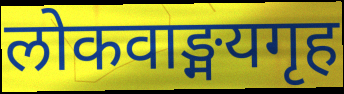
लोकवाङ्मयगृह